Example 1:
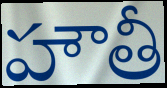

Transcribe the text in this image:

హౌతీ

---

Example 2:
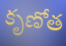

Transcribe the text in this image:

కృణోత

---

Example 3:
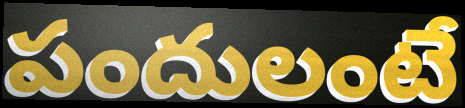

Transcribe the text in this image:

పందులంటే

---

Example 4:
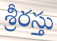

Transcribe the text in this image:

శ్రీరస్తు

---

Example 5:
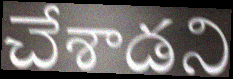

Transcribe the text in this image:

చేశాడని